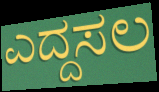
ಎದ್ದಸಲ